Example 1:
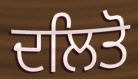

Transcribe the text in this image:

ਦਲਿਤੋ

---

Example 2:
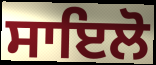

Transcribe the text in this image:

ਸਾਇਲੋ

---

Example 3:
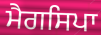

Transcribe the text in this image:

ਮੈਗਸਿਪਾ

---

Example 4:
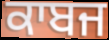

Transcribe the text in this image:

ਕਾਬਜ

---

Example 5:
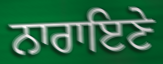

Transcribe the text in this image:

ਨਾਰਾਇਣੇ